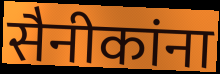
सैनीकांना